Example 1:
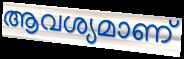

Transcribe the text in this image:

ആവശ്യമാണ്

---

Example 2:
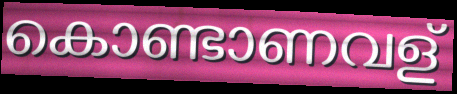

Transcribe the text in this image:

കൊണ്ടാണവള്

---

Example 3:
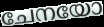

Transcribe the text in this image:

ചേനയോ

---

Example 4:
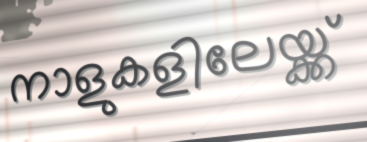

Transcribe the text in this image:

നാളുകളിലേയ്ക്ക്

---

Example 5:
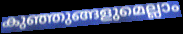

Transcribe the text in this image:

കുഞ്ഞുങ്ങളുമെല്ലാം